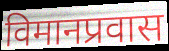
विमानप्रवास